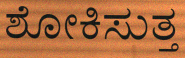
ಶೋಕಿಸುತ್ತ